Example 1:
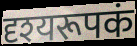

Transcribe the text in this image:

दृश्‍यरूपकं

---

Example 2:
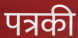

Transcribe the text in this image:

पत्रकी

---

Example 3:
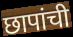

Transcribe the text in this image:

छापांची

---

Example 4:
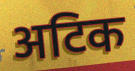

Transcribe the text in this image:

अटिक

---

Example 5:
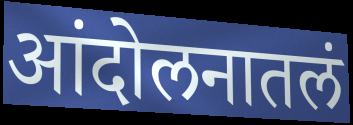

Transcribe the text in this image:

आंदोलनातलं